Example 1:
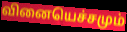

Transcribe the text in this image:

வினையெச்சமும்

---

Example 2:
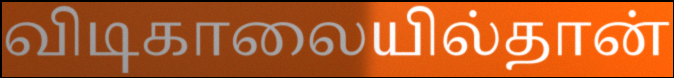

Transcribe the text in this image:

விடிகாலையில்தான்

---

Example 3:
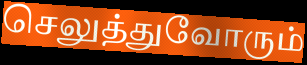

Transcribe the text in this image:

செலுத்துவோரும்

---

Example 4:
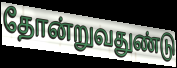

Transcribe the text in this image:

தோன்றுவதுண்டு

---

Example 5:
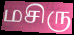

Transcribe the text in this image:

மசிரு